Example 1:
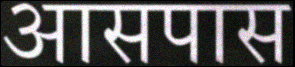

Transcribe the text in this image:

आसपास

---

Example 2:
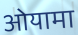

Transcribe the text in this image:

ओयामा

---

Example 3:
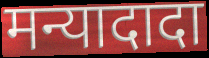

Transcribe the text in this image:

मन्यादादा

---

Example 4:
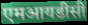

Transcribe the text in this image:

एमआयडीसी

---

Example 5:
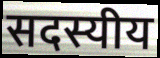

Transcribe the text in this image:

सदस्यीय